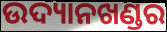
ଉଦ୍ୟାନଖଣ୍ଡର